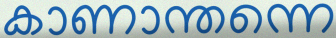
കാണാന്തന്നെ